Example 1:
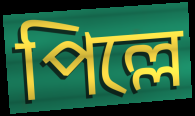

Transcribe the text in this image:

পিল্লে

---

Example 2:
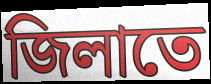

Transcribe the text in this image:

জিলাতে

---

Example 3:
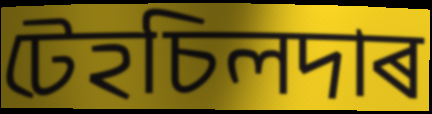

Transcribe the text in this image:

টেহচিলদাৰ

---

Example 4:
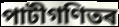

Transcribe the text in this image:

পাটীগণিতৰ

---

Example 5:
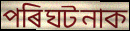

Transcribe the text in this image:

পৰিঘটনাক